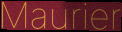
Maurier